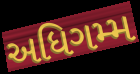
અધિગમ્મ